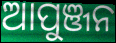
ଆପୁଞ୍ଜନ